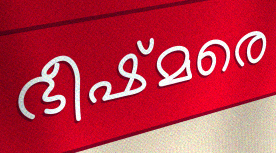
ഭീഷ്മരെ